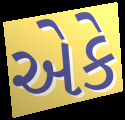
એકે